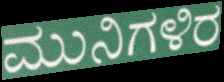
ಮುನಿಗಳಿರ